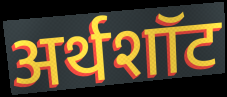
अर्थशॉट